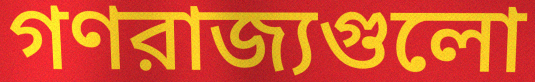
গণরাজ্যগুলো